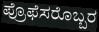
ಪ್ರೊಫೆಸರೊಬ್ಬರ